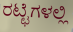
ರಟ್ಟೆಗಳಲ್ಲಿ